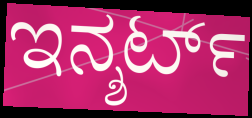
ಇನ್ಶರ್ಟ್